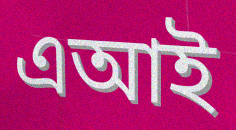
এআই